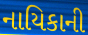
નાયિકાની